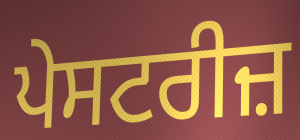
ਪੇਸਟਰੀਜ਼